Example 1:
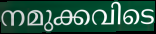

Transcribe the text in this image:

നമുക്കവിടെ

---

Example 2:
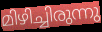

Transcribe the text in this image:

മിഴിച്ചിരുന്നു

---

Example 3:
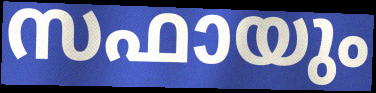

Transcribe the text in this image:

സഫായും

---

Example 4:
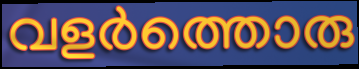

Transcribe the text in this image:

വളർത്തൊരു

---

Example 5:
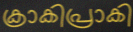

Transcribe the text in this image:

ക്രാകിപ്രാകി